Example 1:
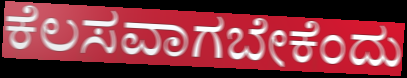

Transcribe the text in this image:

ಕೆಲಸವಾಗಬೇಕೆಂದು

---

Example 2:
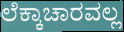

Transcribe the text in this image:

ಲೆಕ್ಕಾಚಾರವಲ್ಲ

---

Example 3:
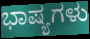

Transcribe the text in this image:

ಭಾಷ್ಯಗಳು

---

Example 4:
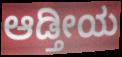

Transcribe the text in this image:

ಆಡ್ತೀಯ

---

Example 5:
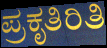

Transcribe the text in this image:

ಪ್ರಕೃತಿರಿತಿ